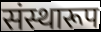
संस्थारूप